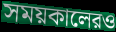
সময়কালেরও